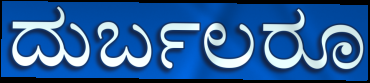
ದುರ್ಬಲರೂ